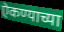
ऐकण्याच्या